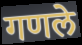
गणले